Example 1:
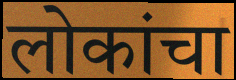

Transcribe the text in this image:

लोकांचा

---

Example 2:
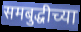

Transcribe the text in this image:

समबुद्धीच्या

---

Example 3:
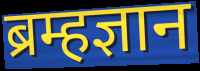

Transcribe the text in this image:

ब्रम्हज्ञान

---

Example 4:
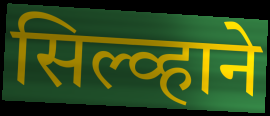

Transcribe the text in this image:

सिल्व्हाने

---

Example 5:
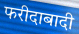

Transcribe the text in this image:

फरीदाबादी